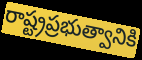
రాష్ట్రప్రభుత్వానికి